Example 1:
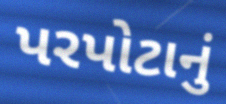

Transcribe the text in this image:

પરપોટાનું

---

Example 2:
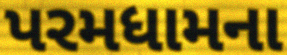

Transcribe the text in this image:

પરમધામના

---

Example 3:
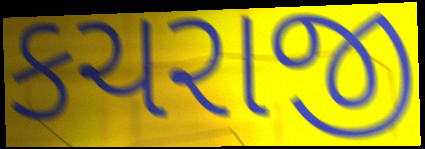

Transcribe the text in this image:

કચરાજી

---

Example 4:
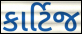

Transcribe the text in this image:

કાર્ટિજ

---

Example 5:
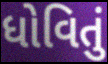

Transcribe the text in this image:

ધોવિતું